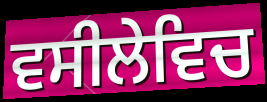
ਵਸੀਲੇਵਿਚ